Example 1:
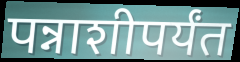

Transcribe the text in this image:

पन्नाशीपर्यंत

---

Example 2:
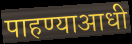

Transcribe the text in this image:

पाहण्याआधी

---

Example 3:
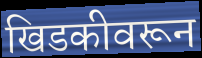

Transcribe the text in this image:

खिडकीवरून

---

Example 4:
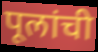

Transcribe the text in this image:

पूलांची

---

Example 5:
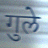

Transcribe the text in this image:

गुले